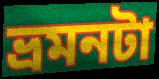
ভ্রমনটা